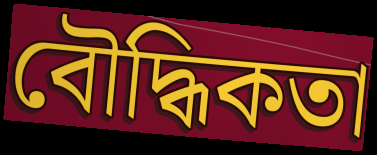
বৌদ্ধিকতা